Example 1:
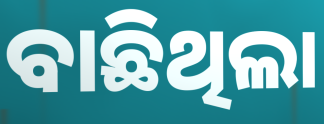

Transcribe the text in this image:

ବାଛିଥିଲା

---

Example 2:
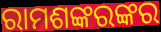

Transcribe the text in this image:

ରାମଶଙ୍କରଙ୍କର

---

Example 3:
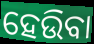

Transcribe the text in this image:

ହେଉିବା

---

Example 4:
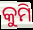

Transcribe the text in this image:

କୁମି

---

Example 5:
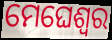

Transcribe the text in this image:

ମେଘେଶ୍ୱର